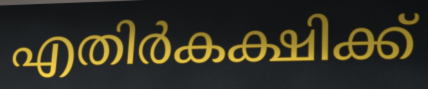
എതിർകക്ഷിക്ക്